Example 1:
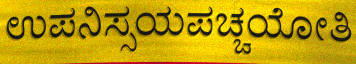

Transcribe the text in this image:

ಉಪನಿಸ್ಸಯಪಚ್ಚಯೋತಿ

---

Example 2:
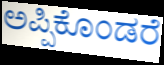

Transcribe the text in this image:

ಅಪ್ಪಿಕೊಂಡರೆ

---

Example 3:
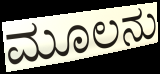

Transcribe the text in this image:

ಮೂಲನು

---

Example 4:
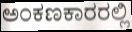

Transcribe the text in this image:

ಅಂಕಣಕಾರರಲ್ಲಿ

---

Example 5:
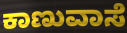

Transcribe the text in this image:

ಕಾಣುವಾಸೆ